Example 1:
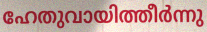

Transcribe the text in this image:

ഹേതുവായിത്തീർന്നു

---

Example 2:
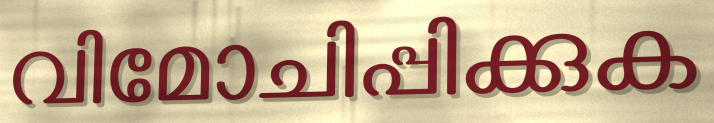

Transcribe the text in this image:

വിമോചിപ്പിക്കുക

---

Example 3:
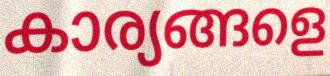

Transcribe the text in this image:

കാര്യങ്ങളെ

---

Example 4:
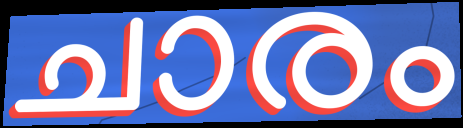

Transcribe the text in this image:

ചാരം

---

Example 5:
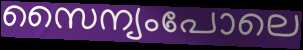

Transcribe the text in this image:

സൈന്യംപോലെ